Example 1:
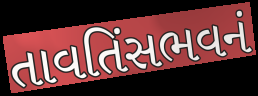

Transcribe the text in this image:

તાવતિંસભવનં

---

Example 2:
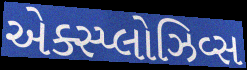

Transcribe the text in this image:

એક્સ્પ્લોઝિવ્સ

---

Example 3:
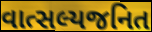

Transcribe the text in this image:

વાત્સલ્યજનિત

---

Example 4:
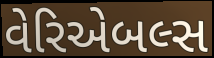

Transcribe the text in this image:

વેરિએબલ્સ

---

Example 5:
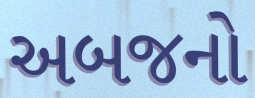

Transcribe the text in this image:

અબજનો